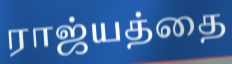
ராஜ்யத்தை